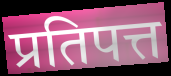
प्रतिपत्त